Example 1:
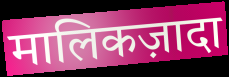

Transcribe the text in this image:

मालिकज़ादा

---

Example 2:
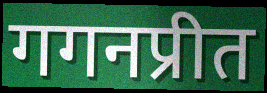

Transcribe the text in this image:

गगनप्रीत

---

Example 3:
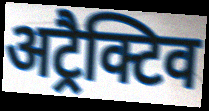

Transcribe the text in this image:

अट्रैक्टिव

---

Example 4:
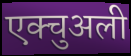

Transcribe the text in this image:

एक्चुअली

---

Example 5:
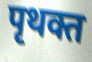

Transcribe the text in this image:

पृथक्त